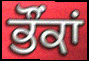
ਭੌਂਕਾਂ